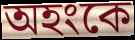
অহংকে